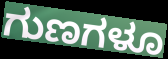
ಗುಣಗಳೂ